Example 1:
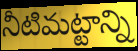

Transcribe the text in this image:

నీటిమట్టాన్ని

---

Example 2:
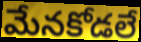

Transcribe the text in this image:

మేనకోడలే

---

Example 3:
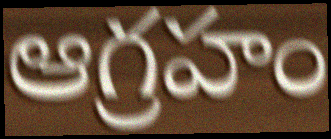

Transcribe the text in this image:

ఆగ్రహం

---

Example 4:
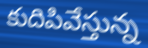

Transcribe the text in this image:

కుదిపివేస్తున్న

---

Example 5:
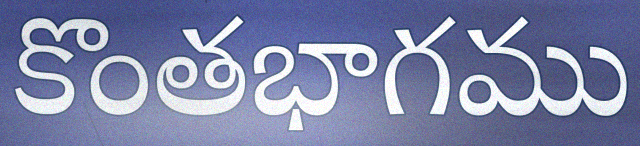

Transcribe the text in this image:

కొంతభాగము